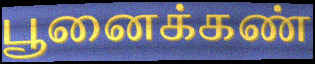
பூனைக்கண்